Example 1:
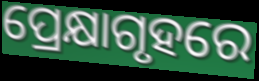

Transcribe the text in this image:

ପ୍ରେକ୍ଷାଗୃହରେ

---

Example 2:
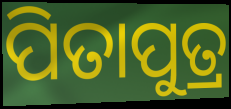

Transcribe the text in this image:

ପିତାପୁତ୍ର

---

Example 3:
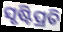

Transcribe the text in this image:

ସୃଷ୍ଟିପ୍ରତି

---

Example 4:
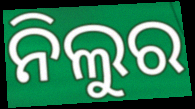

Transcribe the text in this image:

ନିଲୁର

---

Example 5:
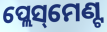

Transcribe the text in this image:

ପ୍ଲେସ୍‌ମେଣ୍ଟ